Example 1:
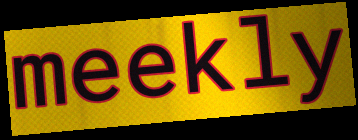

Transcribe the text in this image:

meekly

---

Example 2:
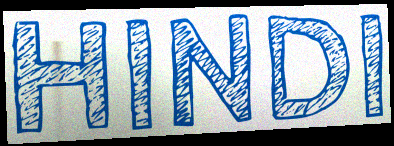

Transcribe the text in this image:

HINDI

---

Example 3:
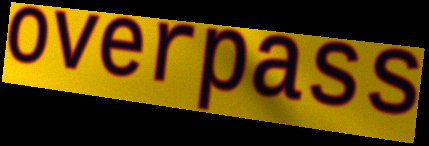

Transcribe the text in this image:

overpass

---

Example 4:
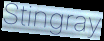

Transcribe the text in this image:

Stingray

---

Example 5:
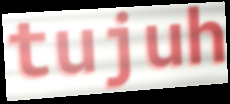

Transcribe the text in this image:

tujuh